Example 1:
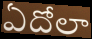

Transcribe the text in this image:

ఏదోలా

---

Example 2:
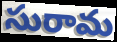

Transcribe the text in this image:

సురామ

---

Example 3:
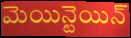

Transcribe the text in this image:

మెయిన్టెయిన్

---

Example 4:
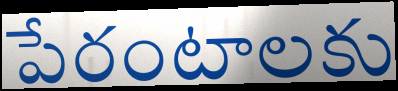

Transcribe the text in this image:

పేరంటాలకు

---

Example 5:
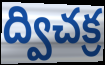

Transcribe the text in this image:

ద్విచక్ర